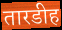
तारडीह